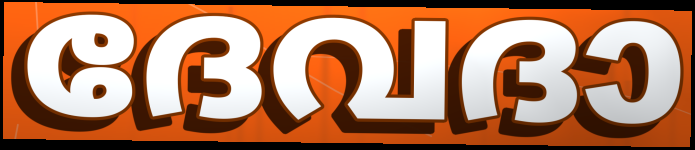
ദേവദാ